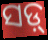
ସଡ଼୍